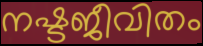
നഷ്ടജീവിതം